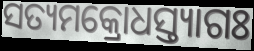
ସତ୍ୟମକ୍ରୋଧସ୍ତ୍ୟାଗଃ